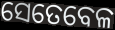
ସେତେବେଳ